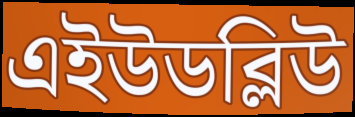
এইউডব্লিউ